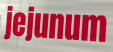
jejunum